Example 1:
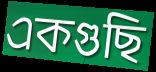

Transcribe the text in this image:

একগুছি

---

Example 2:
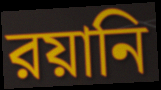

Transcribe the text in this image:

রয়ানি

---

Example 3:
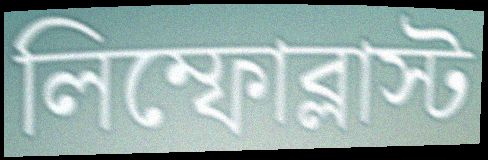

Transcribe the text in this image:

লিম্ফোব্লাস্ট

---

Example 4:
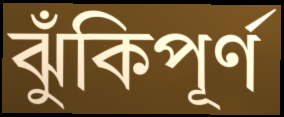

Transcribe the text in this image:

ঝুঁকিপূর্ণ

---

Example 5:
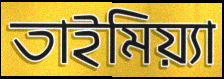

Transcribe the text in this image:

তাইমিয়্যা